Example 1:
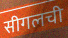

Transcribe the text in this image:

सीगलची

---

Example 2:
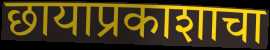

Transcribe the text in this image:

छायाप्रकाशाचा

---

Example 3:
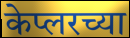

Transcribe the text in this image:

केप्लरच्या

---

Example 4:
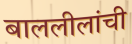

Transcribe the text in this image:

बाललीलांची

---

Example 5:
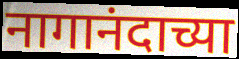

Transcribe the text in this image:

नागानंदाच्या